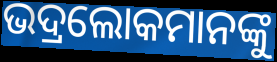
ଭଦ୍ରଲୋକମାନଙ୍କୁ